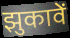
झुकावें